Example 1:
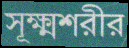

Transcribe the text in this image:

সূক্ষ্মশরীর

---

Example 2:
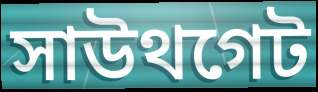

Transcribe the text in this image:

সাউথগেট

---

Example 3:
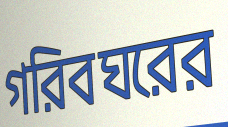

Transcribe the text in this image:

গরিবঘরের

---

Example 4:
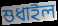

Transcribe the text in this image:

শুধাইল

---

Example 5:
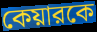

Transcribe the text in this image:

কেয়ারকে